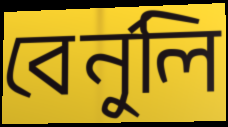
বেৰ্নুলি